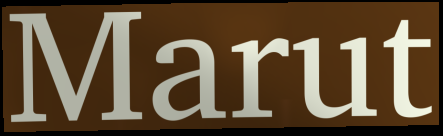
Marut